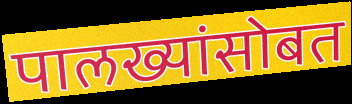
पालख्यांसोबत